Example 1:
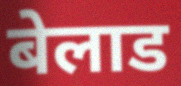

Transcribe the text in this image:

बेलाड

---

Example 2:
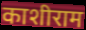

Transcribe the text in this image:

काशीराम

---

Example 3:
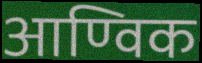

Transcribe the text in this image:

आण्विक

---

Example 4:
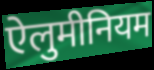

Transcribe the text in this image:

ऐलुमीनियम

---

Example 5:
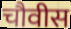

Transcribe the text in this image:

चौवीस